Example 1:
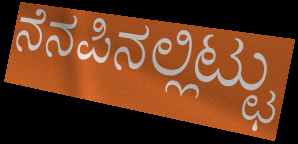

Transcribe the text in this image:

ನೆನಪಿನಲ್ಲಿಟ್ಟು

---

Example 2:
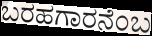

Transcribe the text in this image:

ಬರಹಗಾರನೆಂಬ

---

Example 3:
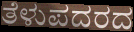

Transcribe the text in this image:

ತೆಳುಪದರದ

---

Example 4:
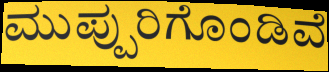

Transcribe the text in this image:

ಮುಪ್ಪುರಿಗೊಂಡಿವೆ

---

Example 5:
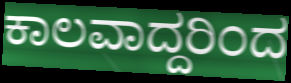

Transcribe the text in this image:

ಕಾಲವಾದ್ದರಿಂದ